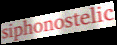
siphonostelic